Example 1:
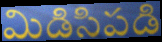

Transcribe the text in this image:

మిడిసిపడి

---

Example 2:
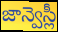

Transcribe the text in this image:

జాన్వెస్లీ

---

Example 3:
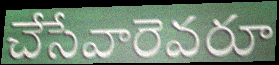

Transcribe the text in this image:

చేసేవారెవరూ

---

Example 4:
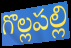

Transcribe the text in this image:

గొల్లపల్లి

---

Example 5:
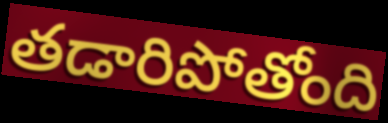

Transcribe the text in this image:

తడారిపోతోంది